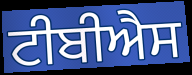
ਟੀਬੀਐਸ